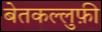
बेतकल्लुफ़ी